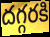
దగ్గరకి